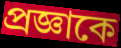
প্রজ্ঞাকে